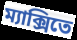
ম্যাক্সিতে